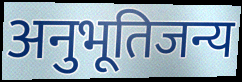
अनुभूतिजन्य